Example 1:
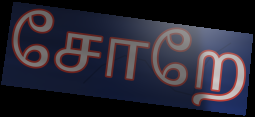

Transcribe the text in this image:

சோறே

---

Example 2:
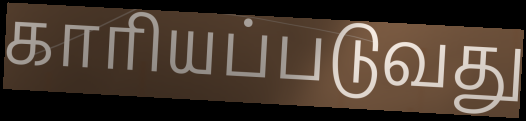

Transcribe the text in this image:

காரியப்படுவது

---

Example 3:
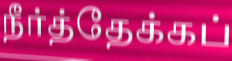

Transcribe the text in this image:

நீர்த்தேக்கப்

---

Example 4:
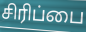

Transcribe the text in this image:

சிரிப்பை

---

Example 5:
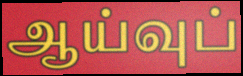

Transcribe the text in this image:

ஆய்வுப்